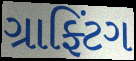
ગ્રાફ્ટિંગ